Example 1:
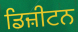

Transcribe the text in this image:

ਡਿਜ਼ੀਟਨ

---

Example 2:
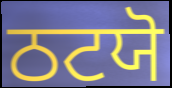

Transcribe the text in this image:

ਠਟਯੋ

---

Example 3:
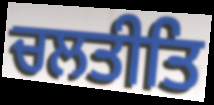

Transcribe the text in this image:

ਚਲਤੀਤਿ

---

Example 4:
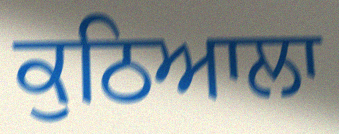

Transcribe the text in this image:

ਕੁਠਿਆਲਾ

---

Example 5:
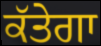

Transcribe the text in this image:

ਕੱਤੇਗਾ